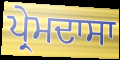
ਪ੍ਰੇਮਦਾਸਾ